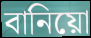
বানিয়ো